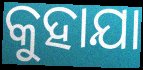
କୁହାଯା